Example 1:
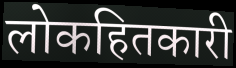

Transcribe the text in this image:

लोकहितकारी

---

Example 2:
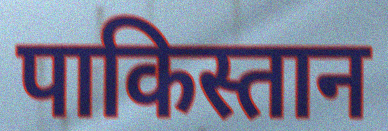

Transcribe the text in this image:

पाकिस्तान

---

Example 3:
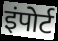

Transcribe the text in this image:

इंपोर्ट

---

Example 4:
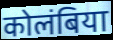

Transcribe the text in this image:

कोलंबिया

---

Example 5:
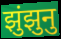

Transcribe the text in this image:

झुंझुनु